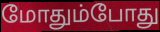
மோதும்போது